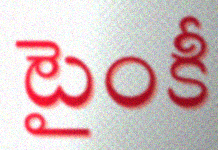
టైంకీ